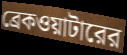
ব্রেকওয়াটারের